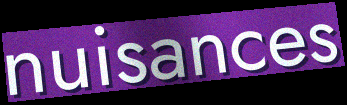
nuisances